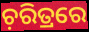
ଚ଼ରିତ୍ରରେ